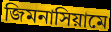
জিমনাসিয়ামে